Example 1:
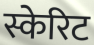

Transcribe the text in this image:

स्केरिट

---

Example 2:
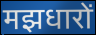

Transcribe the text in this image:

मझधारों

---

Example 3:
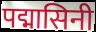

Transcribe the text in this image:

पद्मासिनी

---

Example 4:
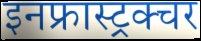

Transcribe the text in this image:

इनफ्रास्ट्रक्चर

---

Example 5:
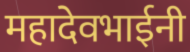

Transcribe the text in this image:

महादेवभाईनी